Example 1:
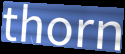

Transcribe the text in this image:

thorn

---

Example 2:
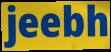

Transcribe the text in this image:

jeebh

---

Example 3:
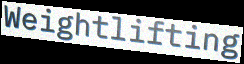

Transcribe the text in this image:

Weightlifting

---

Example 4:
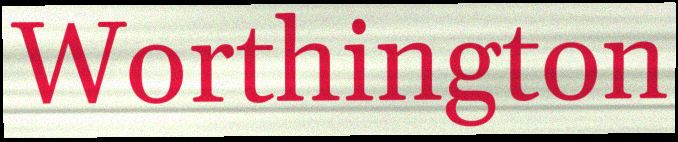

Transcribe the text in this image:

Worthington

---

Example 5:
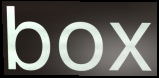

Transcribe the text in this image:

box